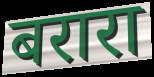
बरारा